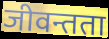
जीवन्तता